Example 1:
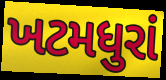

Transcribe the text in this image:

ખટમધુરાં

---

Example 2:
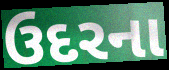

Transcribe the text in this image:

ઉદરના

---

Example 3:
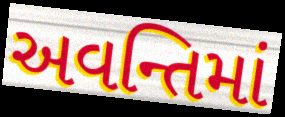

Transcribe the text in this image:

અવન્તિમાં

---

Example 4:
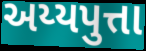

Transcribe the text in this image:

અય્યપુત્તા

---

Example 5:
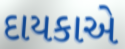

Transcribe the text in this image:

દાયકાએ